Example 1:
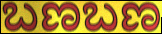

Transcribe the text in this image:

ಬಣಬಣ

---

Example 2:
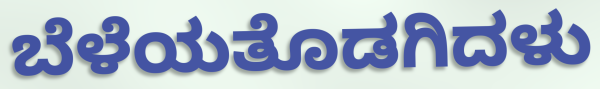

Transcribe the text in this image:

ಬೆಳೆಯತೊಡಗಿದಳು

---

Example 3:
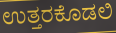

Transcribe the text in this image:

ಉತ್ತರಕೊಡಲಿ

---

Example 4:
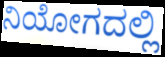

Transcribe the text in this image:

ನಿಯೋಗದಲ್ಲಿ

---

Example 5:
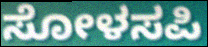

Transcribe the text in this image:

ಸೋಳಸಪಿ